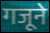
गजूने